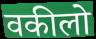
वकीलो